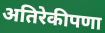
अतिरेकीपणा